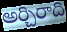
అర్చిరాది